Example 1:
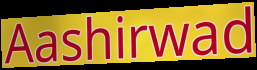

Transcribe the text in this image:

Aashirwad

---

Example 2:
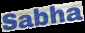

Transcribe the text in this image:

Sabha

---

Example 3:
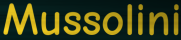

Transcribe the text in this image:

Mussolini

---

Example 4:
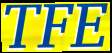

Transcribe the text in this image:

TFE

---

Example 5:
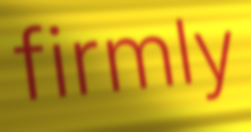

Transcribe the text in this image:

firmly